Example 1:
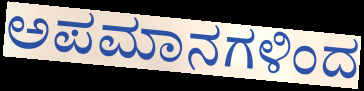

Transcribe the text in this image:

ಅಪಮಾನಗಳಿಂದ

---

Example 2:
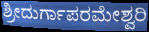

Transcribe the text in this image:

ಶ್ರೀದುರ್ಗಾಪರಮೇಶ್ವರಿ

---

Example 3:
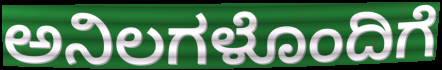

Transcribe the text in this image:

ಅನಿಲಗಳೊಂದಿಗೆ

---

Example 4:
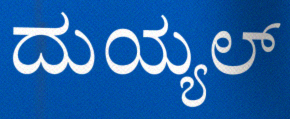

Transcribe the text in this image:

ದುಯ್ಯಲ್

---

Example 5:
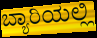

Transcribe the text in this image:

ಬ್ಯಾರಿಯಲ್ಲಿ